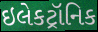
ઇલેકટ્રૉનિક